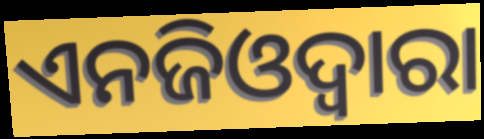
ଏନଜିଓଦ୍ୱାରା